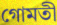
গোমতী